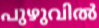
പുഴുവിൽ